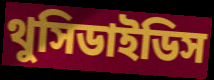
থুসিডাইডিস